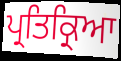
ਪ੍ਰਤਿਕ੍ਰਿਆ